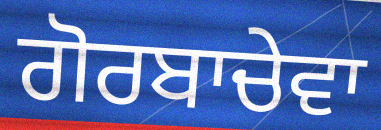
ਗੋਰਬਾਚੇਵਾ